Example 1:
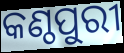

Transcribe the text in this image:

କଣ୍ଠପୁରୀ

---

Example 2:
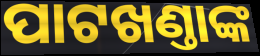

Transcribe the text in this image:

ପାଟଖଣ୍ତାଙ୍କ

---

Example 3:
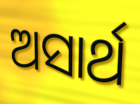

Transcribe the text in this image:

ଅସାର୍ଥ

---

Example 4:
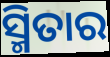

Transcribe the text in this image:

ସ୍ମିତାର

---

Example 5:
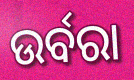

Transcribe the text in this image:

ଉର୍ବରା